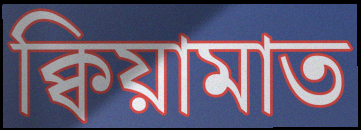
ক্বিয়ামাত